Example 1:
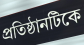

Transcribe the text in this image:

প্রতিষ্ঠানটিকে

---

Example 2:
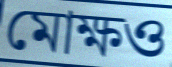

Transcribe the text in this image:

মোক্ষও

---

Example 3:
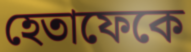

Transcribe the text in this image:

হেতাফেকে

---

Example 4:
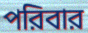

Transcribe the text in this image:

পরিবার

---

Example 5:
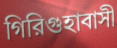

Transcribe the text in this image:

গিরিগুহাবাসী